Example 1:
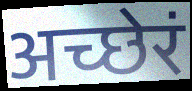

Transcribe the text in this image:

अच्छेरं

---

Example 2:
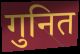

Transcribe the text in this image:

गुनित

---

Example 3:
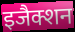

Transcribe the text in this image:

इजैक्शन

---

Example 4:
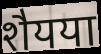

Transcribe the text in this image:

शैयया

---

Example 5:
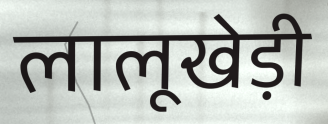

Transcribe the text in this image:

लालूखेड़ी